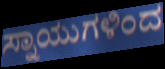
ಸ್ನಾಯುಗಳಿಂದ